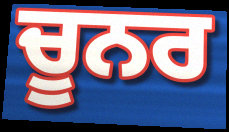
ਚੂਨਰ